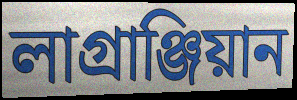
লাগ্ৰাঞ্জিয়ান